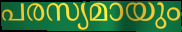
പരസ്യമായും